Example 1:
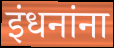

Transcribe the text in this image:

इंधनांना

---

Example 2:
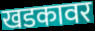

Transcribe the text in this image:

खडकावर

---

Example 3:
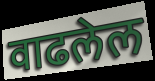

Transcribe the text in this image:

वाढलेल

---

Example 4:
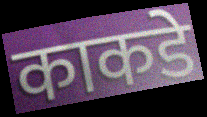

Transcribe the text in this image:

काकडे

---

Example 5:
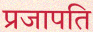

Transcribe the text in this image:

प्रजापति